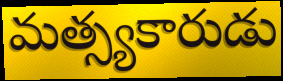
మత్స్యకారుడు